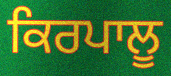
ਕਿਰਪਾਲੂ